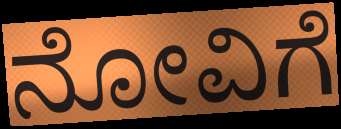
ನೋವಿಗೆ